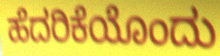
ಹೆದರಿಕೆಯೊಂದು